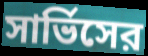
সার্ভিসের